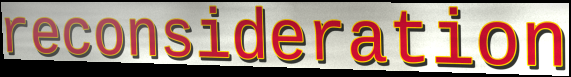
reconsideration